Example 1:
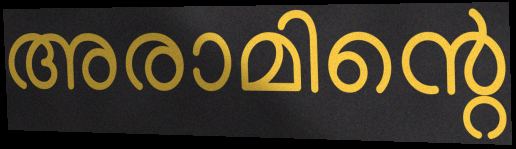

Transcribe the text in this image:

അരാമിന്റെ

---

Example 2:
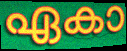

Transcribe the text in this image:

ഏകാ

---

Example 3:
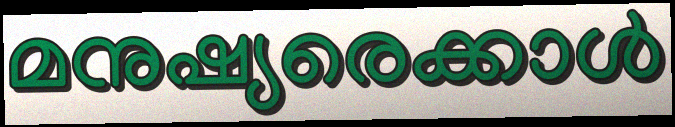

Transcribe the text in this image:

മനുഷ്യരെക്കാൾ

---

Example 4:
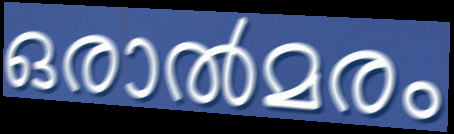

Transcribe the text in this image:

ഒരാൽമരം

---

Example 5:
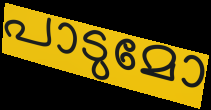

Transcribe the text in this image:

പാടുമോ